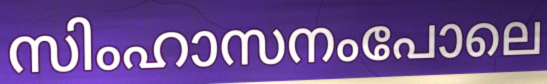
സിംഹാസനംപോലെ